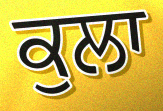
ਕੁਲਾ